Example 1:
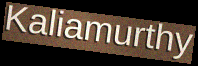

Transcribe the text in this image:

Kaliamurthy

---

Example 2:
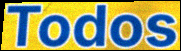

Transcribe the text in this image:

Todos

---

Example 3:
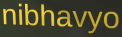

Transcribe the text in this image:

nibhavyo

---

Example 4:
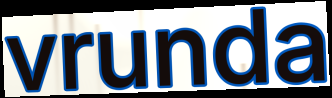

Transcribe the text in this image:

vrunda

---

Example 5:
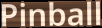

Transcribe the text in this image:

Pinball